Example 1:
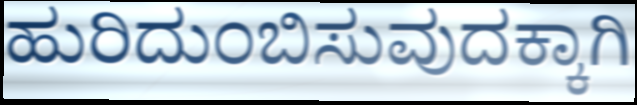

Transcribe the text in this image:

ಹುರಿದುಂಬಿಸುವುದಕ್ಕಾಗಿ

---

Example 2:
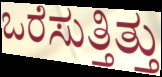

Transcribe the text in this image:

ಒರೆಸುತ್ತಿತ್ತು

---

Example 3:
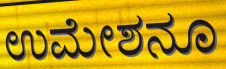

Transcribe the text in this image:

ಉಮೇಶನೂ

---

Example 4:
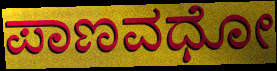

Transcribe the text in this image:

ಪಾಣವಧೋ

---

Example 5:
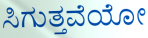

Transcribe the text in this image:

ಸಿಗುತ್ತವೆಯೋ